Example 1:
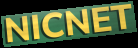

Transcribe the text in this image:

NICNET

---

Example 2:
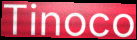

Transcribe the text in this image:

Tinoco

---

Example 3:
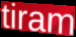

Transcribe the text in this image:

tiram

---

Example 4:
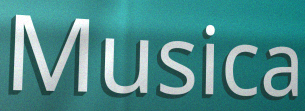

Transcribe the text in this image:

Musica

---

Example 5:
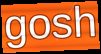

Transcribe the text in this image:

gosh